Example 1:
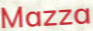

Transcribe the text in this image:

Mazza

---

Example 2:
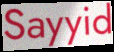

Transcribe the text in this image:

Sayyid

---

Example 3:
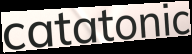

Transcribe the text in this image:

catatonic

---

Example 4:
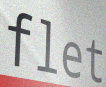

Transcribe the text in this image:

flet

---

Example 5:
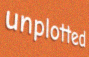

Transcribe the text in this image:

unplotted